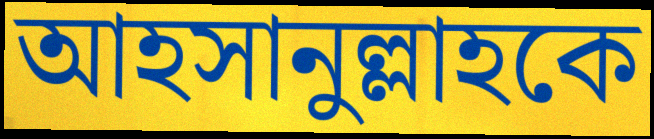
আহসানুল্লাহকে